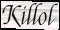
Killol